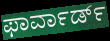
ಫಾರ್ವಾರ್ಡ್